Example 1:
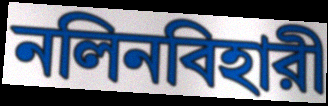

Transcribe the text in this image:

নলিনবিহারী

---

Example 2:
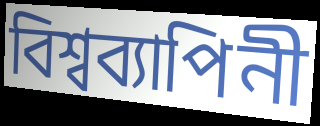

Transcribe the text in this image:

বিশ্বব্যাপিনী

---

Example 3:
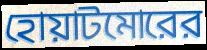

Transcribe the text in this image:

হোয়াটমোরের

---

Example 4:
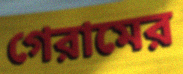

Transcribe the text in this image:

গেরামের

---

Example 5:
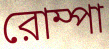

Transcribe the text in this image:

রোম্পা